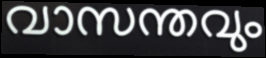
വാസന്തവും